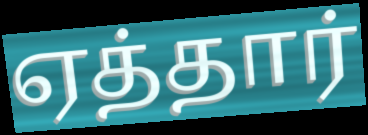
ஏத்தார்